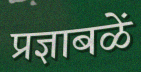
प्रज्ञाबळें